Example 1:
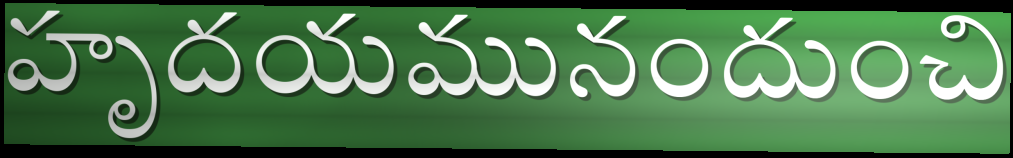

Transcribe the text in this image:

హృదయమునందుంచి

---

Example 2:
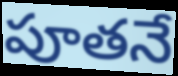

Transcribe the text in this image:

పూతనే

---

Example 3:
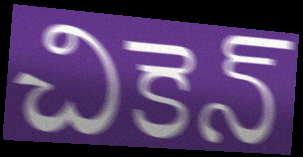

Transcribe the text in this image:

చికెన్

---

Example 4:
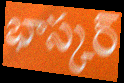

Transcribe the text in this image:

భాస్కర్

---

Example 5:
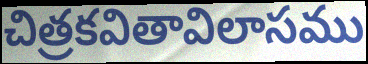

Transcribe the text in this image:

చిత్రకవితావిలాసము